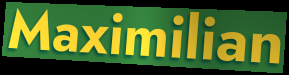
Maximilian